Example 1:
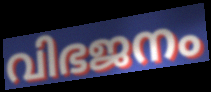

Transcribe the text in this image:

വിഭജനം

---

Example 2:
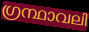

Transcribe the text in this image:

ഗ്രന്ഥാവലി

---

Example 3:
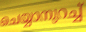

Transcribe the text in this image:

ചെയ്യാനുറച്ച്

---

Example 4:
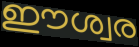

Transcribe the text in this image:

ഈശ്വര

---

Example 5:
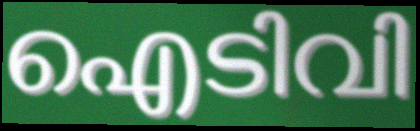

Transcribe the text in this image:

ഐടിവി